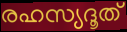
രഹസ്യദൂത്